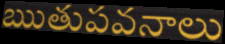
ఋతుపవనాలు